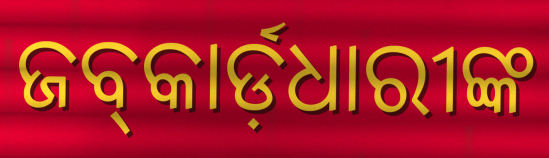
ଜବ୍‍କାର୍ଡ଼ଧାରୀଙ୍କ